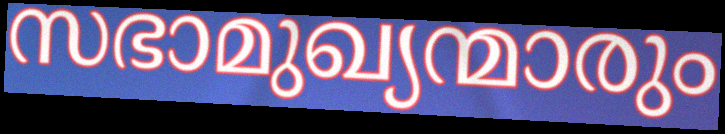
സഭാമുഖ്യന്മാരും